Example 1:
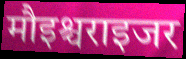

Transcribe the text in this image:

मौइश्चराइजर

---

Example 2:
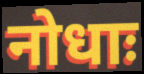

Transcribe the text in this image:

नोधाः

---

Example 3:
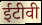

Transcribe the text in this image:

ईटीवी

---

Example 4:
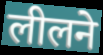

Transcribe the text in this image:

लीलने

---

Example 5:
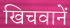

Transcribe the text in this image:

खिचवानें